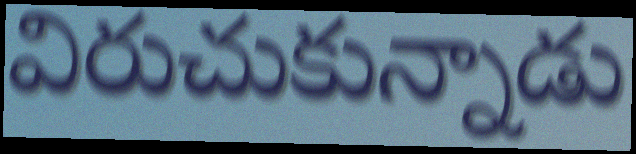
విరుచుకున్నాడు